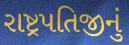
રાષ્ટ્રપતિજીનું